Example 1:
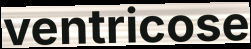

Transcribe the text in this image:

ventricose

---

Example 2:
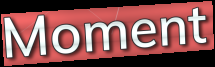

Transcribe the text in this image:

Moment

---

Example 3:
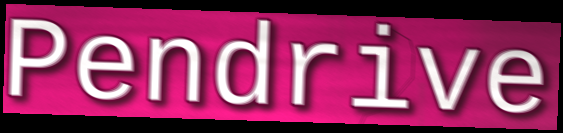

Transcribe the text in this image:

Pendrive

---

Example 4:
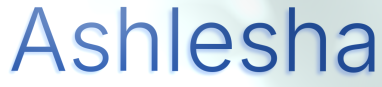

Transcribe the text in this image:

Ashlesha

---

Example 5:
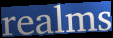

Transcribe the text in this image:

realms